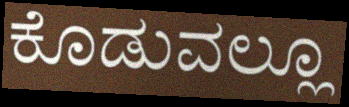
ಕೊಡುವಲ್ಲೂ